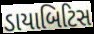
ડાયાબિટિસ